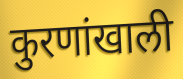
कुरणांखाली